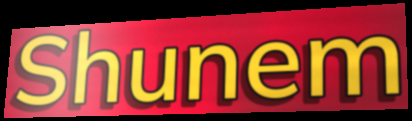
Shunem